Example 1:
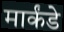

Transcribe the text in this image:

मार्कंडे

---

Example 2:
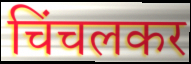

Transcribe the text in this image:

चिंचलकर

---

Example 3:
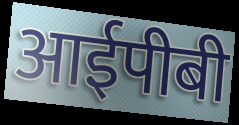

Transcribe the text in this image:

आईपीबी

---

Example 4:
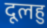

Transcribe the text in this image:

दूलहु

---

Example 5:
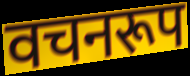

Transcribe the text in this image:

वचनरूप